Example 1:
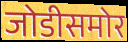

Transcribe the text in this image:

जोडीसमोर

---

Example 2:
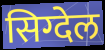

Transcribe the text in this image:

सिग्देल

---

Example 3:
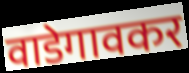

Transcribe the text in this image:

वाडेगावकर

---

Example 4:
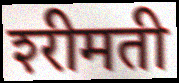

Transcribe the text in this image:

श्रीमती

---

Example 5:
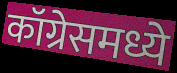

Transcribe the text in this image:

कॉग्रेसमध्ये